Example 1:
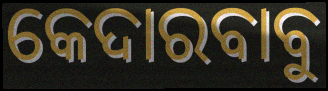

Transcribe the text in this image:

କେଦାରବାବୁ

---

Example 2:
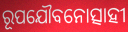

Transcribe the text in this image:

ରୂପଯୌବନୋତ୍ସାହୀ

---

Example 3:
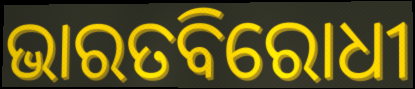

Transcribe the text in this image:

ଭାରତବିରୋଧୀ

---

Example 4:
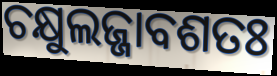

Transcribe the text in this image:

ଚକ୍ଷୁଲଜ୍ଜାବଶତଃ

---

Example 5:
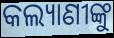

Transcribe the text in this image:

କଲ୍ୟାଣୀଙ୍କୁ